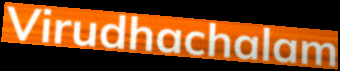
Virudhachalam